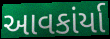
આવકાંર્યા